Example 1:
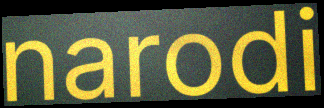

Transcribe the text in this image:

narodi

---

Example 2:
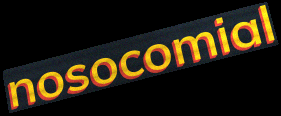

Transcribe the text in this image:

nosocomial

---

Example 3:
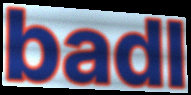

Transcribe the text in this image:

badl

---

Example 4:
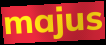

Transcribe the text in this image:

majus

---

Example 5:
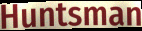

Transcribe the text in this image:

Huntsman